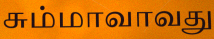
சும்மாவாவது